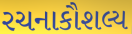
રચનાકૌશલ્ય